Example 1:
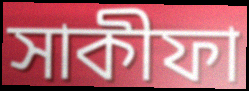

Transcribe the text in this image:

সাকীফা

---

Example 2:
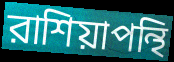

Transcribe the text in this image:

রাশিয়াপন্থি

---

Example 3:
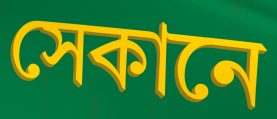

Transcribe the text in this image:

সেকানে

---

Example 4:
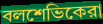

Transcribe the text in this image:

বলশেভিকেরা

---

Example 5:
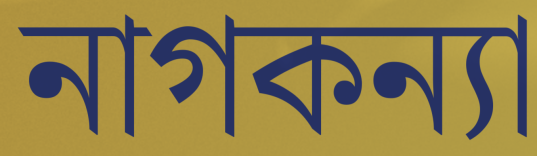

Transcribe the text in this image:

নাগকন্যা